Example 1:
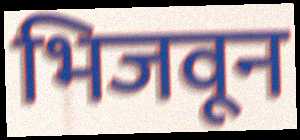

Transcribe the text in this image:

भिजवून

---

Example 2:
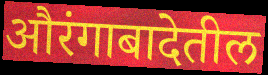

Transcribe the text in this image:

औरंगाबादेतील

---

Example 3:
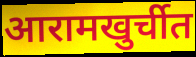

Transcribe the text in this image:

आरामखुर्चीत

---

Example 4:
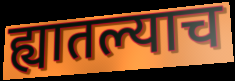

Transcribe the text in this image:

ह्यातल्याच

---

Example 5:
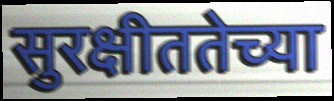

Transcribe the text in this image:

सुरक्षीततेच्या